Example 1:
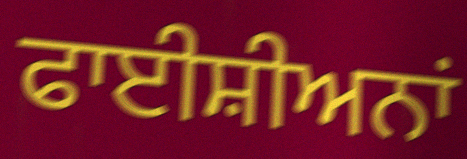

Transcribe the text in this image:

ਫਾਈਸ਼ੀਅਨਾਂ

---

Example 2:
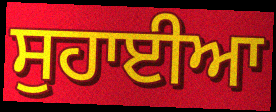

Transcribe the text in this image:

ਸੁਹਾਈਆ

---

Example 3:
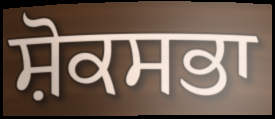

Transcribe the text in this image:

ਸ਼ੋਕਸਭਾ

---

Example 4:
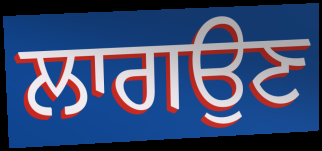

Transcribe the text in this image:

ਲਾਗਉਣ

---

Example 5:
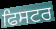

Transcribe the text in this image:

ਫਿਸਟਰ